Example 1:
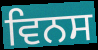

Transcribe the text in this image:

ਵਿਨਸ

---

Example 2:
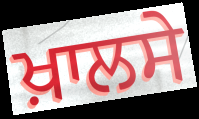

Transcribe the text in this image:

ਖ਼ਾਲਸੇ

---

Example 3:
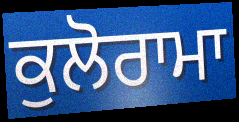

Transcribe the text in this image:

ਕੁਲੋਰਾਮਾ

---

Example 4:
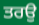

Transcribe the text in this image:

ਤਰਉ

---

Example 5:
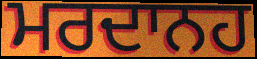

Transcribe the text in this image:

ਮਰਦਾਨਹ